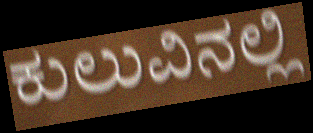
ಕುಲುವಿನಲ್ಲಿ